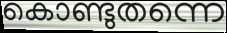
കൊണ്ടുതന്നെ